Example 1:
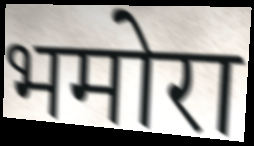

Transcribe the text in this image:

भमोरा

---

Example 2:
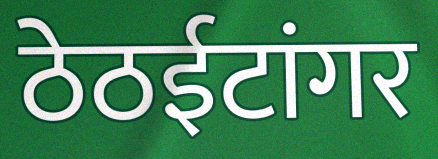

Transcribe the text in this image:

ठेठईटांगर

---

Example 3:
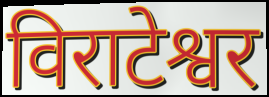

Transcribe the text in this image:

विराटेश्वर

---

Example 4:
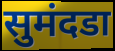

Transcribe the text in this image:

सुमंदडा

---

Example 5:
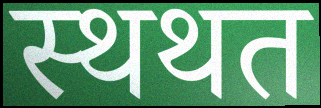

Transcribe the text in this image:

स्थथत